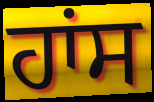
ਹਾਂਸ